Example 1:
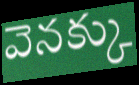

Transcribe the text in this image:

వెనక్కు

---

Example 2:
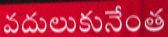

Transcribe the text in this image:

వదులుకునేంత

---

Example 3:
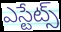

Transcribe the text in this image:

ఎస్టేట్స్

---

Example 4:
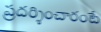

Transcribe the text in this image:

ప్రదర్శించారంటే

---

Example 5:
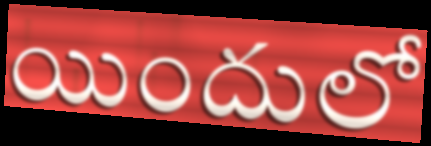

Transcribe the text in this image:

యిందులో